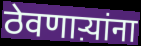
ठेवणाऱ्‍यांना